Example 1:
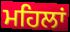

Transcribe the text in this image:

ਮਹਿਲਾਂ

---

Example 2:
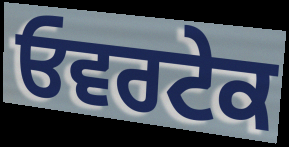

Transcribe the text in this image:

ਓਵਰਟੇਕ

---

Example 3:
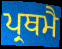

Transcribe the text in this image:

ਪ੍ਰਥਮੈ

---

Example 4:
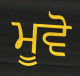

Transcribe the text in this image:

ਮੂਵੋ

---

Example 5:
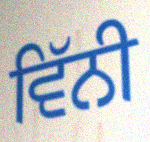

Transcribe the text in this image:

ਵਿੱਨੀ